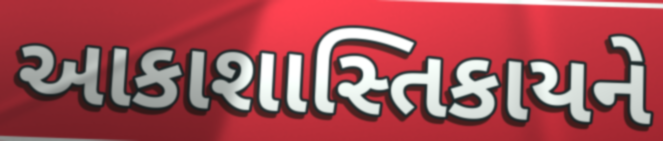
આકાશાસ્તિકાયને